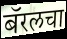
बॅरलचा